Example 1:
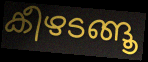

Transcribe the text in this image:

കീഴടങ്ങൂ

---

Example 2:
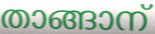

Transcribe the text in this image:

താങ്ങാന്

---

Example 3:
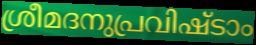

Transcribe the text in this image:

ശ്രീമദനുപ്രവിഷ്ടാം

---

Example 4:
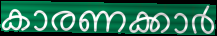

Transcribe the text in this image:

കാരണക്കാർ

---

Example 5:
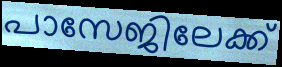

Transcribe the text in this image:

പാസേജിലേക്ക്